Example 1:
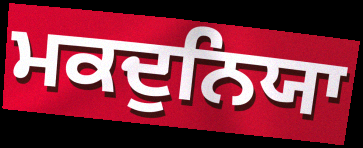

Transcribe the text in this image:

ਮਕਦੁਨਿਯਾ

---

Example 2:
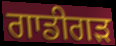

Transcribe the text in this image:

ਗਾਡੀਗੜ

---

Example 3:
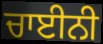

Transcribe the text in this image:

ਚਾਈਨੀ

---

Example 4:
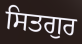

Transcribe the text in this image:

ਸਿਤਗੁਰ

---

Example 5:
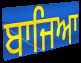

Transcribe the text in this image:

ਬਾਜਿਆ